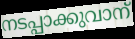
നടപ്പാക്കുവാന്